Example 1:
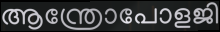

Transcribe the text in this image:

ആന്ത്രോപോളജി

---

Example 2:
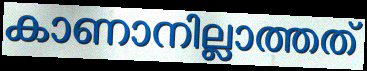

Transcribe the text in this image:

കാണാനില്ലാത്തത്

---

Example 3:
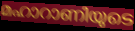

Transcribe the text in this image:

മഹാറാണിയുടെ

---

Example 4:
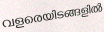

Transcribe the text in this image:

വളരെയിടങ്ങളിൽ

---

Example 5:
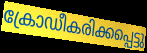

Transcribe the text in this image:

ക്രോഡീകരിക്കപ്പെട്ടു